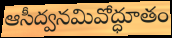
ఆసీద్వనమివోద్ధూతం